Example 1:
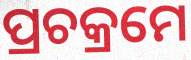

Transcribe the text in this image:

ପ୍ରଚକ୍ରମେ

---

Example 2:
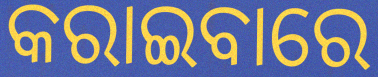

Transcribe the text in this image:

କରାଇବାରେ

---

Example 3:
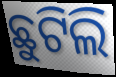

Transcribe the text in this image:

ଛୁଟିଲି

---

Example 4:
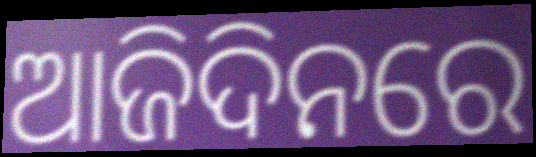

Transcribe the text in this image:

ଆଜିଦିନରେ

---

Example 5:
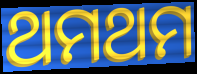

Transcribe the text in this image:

ଥମଥମ